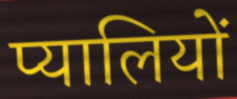
प्यालियों